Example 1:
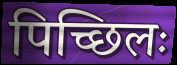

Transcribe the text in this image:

पिच्छिलः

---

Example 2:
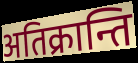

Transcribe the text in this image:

अतिक्रान्ति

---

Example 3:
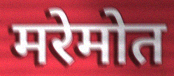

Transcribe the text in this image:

मरेमोत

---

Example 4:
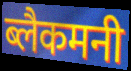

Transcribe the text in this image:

ब्‍लैकमनी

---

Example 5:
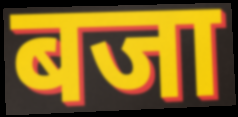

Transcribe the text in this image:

बजा